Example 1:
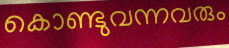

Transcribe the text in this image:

കൊണ്ടുവന്നവരും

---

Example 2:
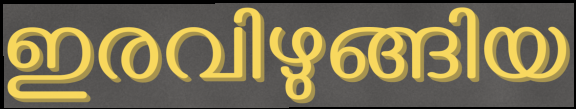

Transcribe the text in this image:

ഇരവിഴുങ്ങിയ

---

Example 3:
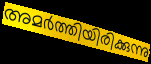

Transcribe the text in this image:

അമർത്തിയിരിക്കുന്നു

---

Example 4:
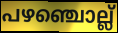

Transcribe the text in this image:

പഴഞ്ചൊല്ല്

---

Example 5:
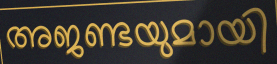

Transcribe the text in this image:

അജണ്ടയുമായി